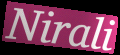
Nirali